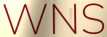
WNS